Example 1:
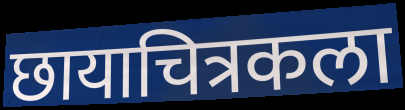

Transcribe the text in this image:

छायाचित्रकला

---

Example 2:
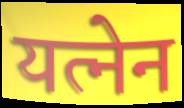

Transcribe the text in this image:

यत्नेन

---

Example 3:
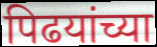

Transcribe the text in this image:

पिढयांच्या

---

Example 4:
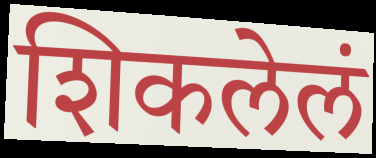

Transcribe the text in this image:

शिकलेलं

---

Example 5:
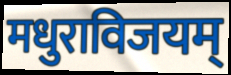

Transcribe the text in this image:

मधुराविजयम्